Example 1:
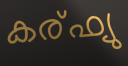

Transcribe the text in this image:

കര്ഫ്യു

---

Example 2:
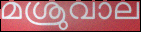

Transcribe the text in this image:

മശ്രുവാല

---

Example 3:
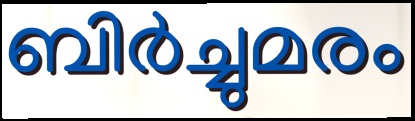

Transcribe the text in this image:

ബിർച്ചുമരം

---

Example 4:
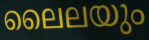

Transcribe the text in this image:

ലൈലയും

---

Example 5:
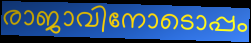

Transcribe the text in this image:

രാജാവിനോടൊപ്പം